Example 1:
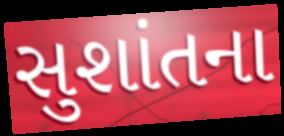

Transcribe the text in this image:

સુશાંતના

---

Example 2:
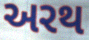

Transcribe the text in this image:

અરથ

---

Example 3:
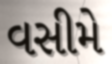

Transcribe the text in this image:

વસીમે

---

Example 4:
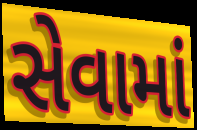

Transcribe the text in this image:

સેવામાં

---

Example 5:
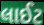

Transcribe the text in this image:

લાઈટ